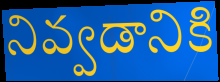
నివ్వడానికి